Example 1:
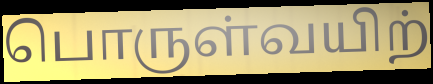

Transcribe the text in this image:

பொருள்வயிற்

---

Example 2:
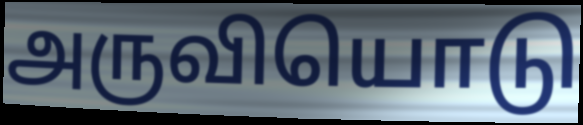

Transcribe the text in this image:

அருவியொடு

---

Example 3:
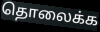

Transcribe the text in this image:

தொலைக்க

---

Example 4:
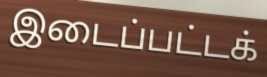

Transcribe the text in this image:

இடைப்பட்டக்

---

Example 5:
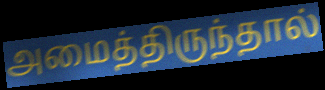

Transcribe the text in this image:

அமைத்திருந்தால்